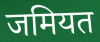
जमियत